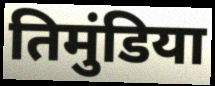
तिमुंडिया